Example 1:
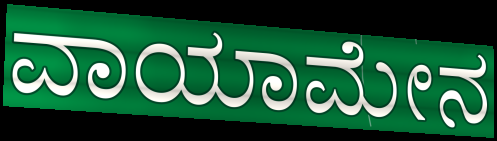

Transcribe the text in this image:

ವಾಯಾಮೇನ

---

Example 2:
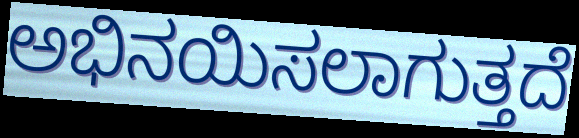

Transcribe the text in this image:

ಅಭಿನಯಿಸಲಾಗುತ್ತದೆ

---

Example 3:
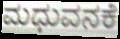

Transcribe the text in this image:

ಮಧುವನಕೆ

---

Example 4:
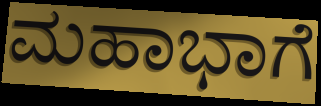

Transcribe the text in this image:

ಮಹಾಭಾಗೆ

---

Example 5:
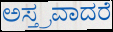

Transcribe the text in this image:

ಅಸ್ತ್ರವಾದರೆ